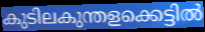
കുടിലകുന്തളക്കെട്ടിൽ